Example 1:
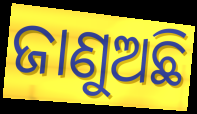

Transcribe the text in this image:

ଜାଣୁଅଛି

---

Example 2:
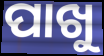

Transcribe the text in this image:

ପାଖୁ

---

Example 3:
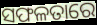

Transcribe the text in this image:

ସଫଳତାରେ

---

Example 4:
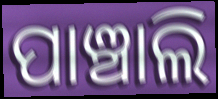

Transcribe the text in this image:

ପାଞ୍ଚାଲି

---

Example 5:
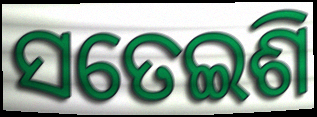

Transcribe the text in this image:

ସତେଇଶି